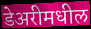
डेअरीमधील